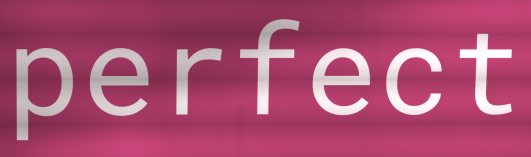
perfect